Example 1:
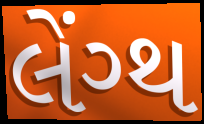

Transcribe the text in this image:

લેંગ્થ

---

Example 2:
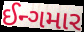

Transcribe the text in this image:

ઈન્ગમાર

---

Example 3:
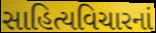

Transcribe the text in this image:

સાહિત્યવિચારનાં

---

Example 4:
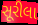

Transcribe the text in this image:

સૂરીલા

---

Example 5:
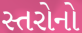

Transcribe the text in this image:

સ્તરોનો